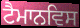
ਟੈਮਾਨਵਿਸ